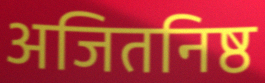
अजितनिष्ठ